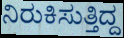
ನಿರುಕಿಸುತ್ತಿದ್ದ